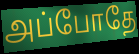
அப்போதே